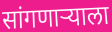
सांगणार्‍याला